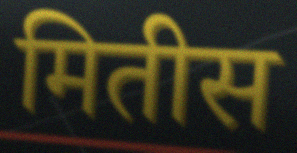
मितीस